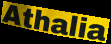
Athalia